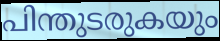
പിന്തുടരുകയും